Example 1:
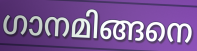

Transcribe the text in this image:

ഗാനമിങ്ങനെ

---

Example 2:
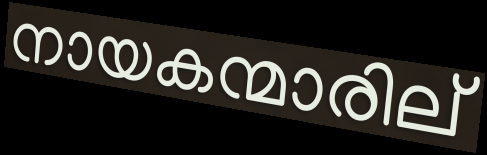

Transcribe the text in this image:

നായകന്മാരില്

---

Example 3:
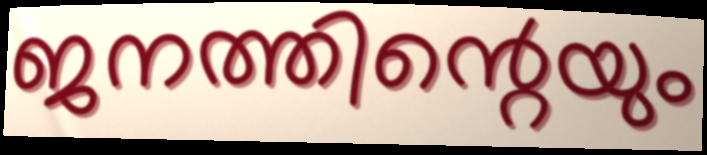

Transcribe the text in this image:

ജനത്തിന്റെയും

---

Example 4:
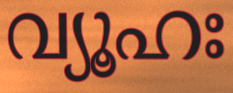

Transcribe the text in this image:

വ്യൂഹഃ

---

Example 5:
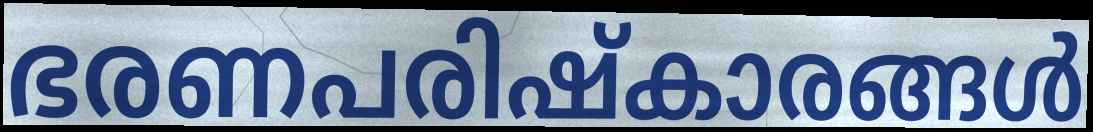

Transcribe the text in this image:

ഭരണപരിഷ്കാരങ്ങൾ